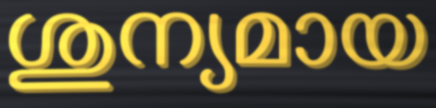
ശുന്യമായ